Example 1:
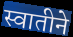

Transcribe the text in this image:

स्वातीने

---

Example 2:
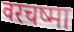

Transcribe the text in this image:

वरचष्मा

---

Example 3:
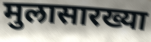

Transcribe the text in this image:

मुलासारख्या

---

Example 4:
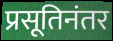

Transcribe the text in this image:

प्रसूतिनंतर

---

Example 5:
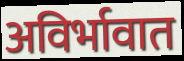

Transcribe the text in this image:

अविर्भावात